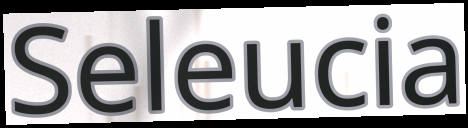
Seleucia